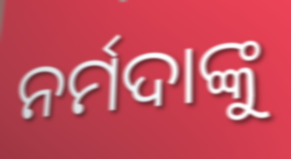
ନର୍ମଦାଙ୍କୁ